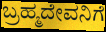
ಬ್ರಹ್ಮದೇವನಿಗೆ